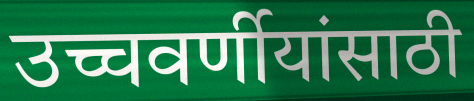
उच्चवर्णीयांसाठी